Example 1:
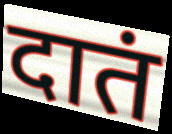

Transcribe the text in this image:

दातं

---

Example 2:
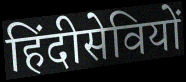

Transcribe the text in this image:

हिंदीसेवियों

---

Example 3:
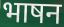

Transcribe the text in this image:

भाषन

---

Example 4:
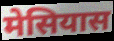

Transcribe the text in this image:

मेसियास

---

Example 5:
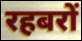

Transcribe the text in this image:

रहबरों